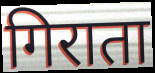
गिराता